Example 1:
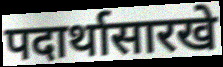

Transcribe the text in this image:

पदार्थासारखे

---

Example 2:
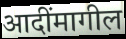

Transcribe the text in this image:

आदींमागील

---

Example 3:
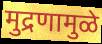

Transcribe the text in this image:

मुद्रणामुळे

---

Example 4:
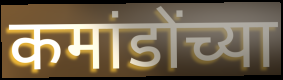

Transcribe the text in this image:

कमांडोंच्या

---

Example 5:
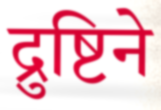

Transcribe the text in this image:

द्रुष्टिने